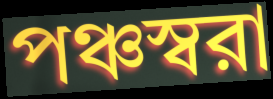
পঞ্চস্বরা